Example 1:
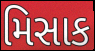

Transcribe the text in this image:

મિસાક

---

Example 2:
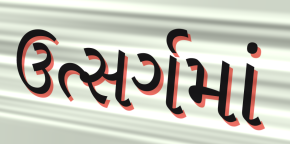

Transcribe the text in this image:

ઉત્સર્ગમાં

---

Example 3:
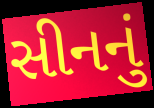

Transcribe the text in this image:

સીનનું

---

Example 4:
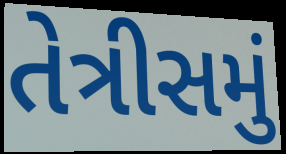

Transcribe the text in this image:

તેત્રીસમું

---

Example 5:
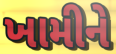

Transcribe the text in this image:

ખામીને